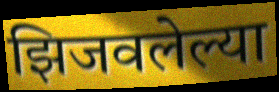
झिजवलेल्या